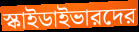
স্কাইডাইভারদের